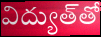
విద్యుత్‌తో